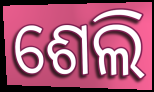
ଶେଲି